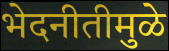
भेदनीतीमुळे